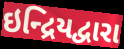
ઇન્દ્રિયદ્વારા